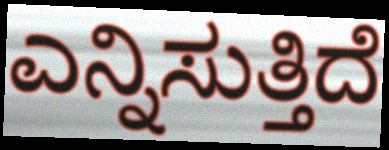
ಎನ್ನಿಸುತ್ತಿದೆ